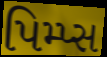
પિમ્પ્સ